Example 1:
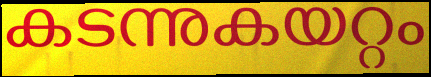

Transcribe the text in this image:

കടന്നുകയറ്റം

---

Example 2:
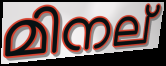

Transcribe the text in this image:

മിനല്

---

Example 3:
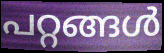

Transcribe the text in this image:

പറ്റങ്ങൾ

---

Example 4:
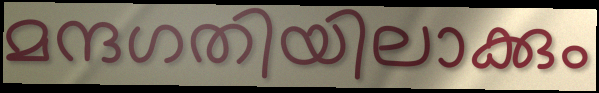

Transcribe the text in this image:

മന്ദഗതിയിലാക്കും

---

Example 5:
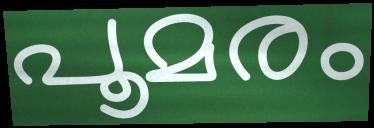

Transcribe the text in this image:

പൂമരം